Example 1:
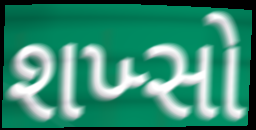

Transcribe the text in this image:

શખ્સો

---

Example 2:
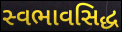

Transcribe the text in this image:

સ્વભાવસિદ્ધ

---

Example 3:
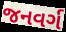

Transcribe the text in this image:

જનવર્ગ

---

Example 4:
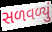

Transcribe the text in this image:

સળવળ્યું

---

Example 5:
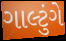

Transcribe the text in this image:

ગાલ્ટુંગે